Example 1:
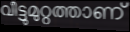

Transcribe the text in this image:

വീട്ടുമുറ്റത്താണ്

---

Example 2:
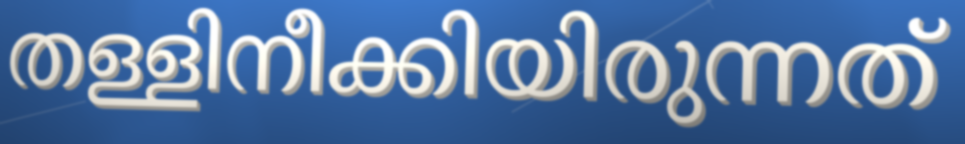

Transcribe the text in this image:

തള്ളിനീക്കിയിരുന്നത്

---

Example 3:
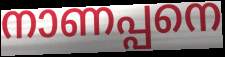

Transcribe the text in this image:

നാണപ്പനെ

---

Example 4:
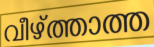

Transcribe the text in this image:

വീഴ്ത്താത്ത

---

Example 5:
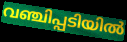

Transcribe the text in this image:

വഞ്ചിപ്പടിയിൽ